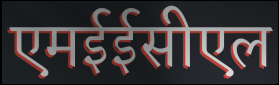
एमईईसीएल